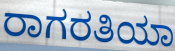
ರಾಗರತಿಯಾ